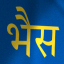
भैस